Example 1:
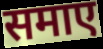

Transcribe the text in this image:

समाए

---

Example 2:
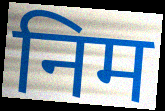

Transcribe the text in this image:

निम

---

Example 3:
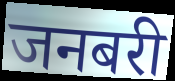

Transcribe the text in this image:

जनबरी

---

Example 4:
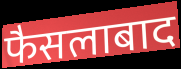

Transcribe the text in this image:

फैसलाबाद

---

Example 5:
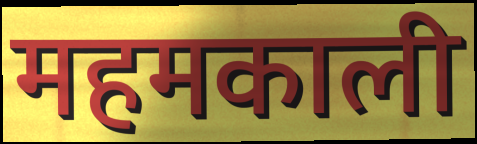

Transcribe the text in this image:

महमकाली